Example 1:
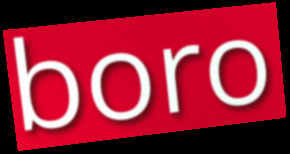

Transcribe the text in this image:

boro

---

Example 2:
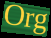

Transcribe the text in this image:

Org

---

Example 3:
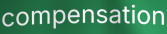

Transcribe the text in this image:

compensation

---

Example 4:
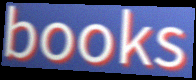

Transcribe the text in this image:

books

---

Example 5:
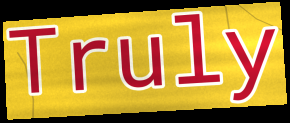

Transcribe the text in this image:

Truly